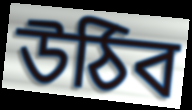
উঠিব